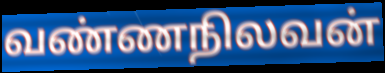
வண்ணநிலவன்